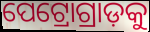
ପେଟ୍ରୋଗ୍ରାଡ଼କୁ